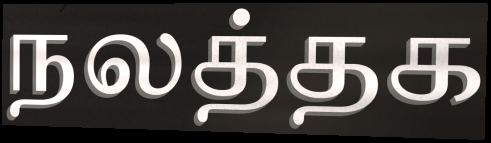
நலத்தக